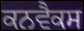
ਕਨਵੈਕਸ